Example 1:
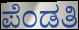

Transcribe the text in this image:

ಪೆಂಡತಿ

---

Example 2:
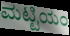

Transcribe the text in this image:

ಮಟ್ಟಿಯಂ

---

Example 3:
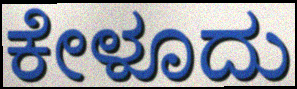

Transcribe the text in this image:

ಕೇಳೂದು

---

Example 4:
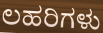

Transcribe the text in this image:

ಲಹರಿಗಳು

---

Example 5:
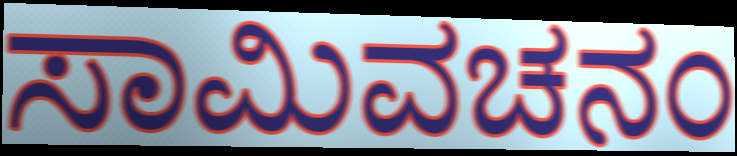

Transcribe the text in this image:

ಸಾಮಿವಚನಂ